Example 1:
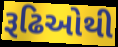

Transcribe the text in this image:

રૂઢિઓથી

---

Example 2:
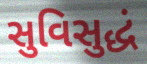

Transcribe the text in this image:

સુવિસુદ્ધં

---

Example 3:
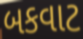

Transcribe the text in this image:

બકવાટ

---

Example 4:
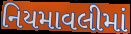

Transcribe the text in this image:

નિયમાવલીમાં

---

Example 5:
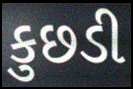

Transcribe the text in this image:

કુછડી